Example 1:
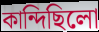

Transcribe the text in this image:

কান্দিছিলো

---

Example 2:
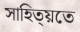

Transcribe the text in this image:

সাহিত্য়তে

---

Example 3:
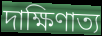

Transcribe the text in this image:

দাক্ষিণাত্য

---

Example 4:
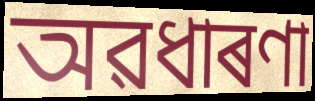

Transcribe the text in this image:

অৱধাৰণা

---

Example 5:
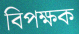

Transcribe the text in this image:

বিপক্ষক